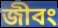
জীবং